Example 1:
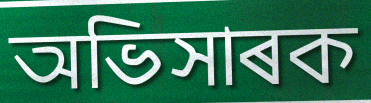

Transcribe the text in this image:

অভিসাৰক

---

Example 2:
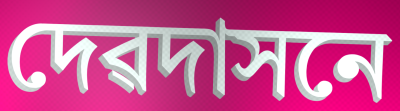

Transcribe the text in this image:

দেৱদাসনে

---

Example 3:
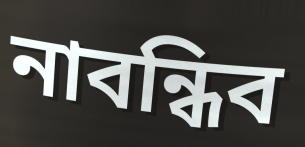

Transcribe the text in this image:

নাবন্ধিব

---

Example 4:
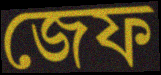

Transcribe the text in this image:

জেফ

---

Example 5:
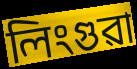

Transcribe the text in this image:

লিংগুৱা